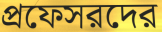
প্রফেসরদের